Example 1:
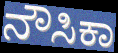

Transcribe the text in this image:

ನೌಸಿಕಾ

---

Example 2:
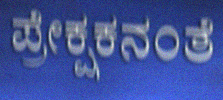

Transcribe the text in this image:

ಪ್ರೇಕ್ಷಕನಂತೆ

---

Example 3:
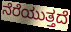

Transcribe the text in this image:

ನೆರೆಯುತ್ತದೆ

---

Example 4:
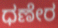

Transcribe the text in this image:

ಧಣೇರ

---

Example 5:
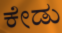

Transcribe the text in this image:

ಕೇಡು